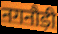
नगनौड़ी